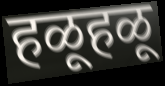
हळूहळू